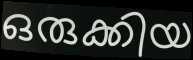
ഒരുക്കിയ